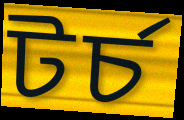
টৰ্চ